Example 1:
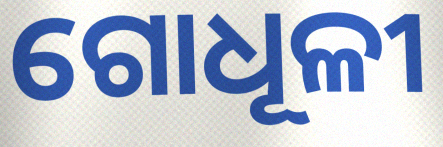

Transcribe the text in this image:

ଗୋଧୂଳୀ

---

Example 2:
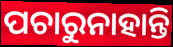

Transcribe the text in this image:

ପଚାରୁନାହାନ୍ତି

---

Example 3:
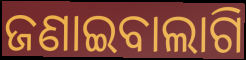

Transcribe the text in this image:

ଜଣାଇବାଲାଗି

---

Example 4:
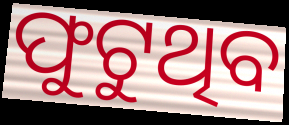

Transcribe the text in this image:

ଫୁଟୁଥିବ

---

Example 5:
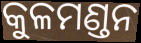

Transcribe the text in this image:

କୁଳମଣ୍ଡନ